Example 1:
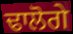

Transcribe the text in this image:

ਢਾਲੋਗੇ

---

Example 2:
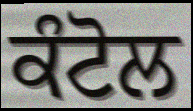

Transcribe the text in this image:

ਕੰਟੋਲ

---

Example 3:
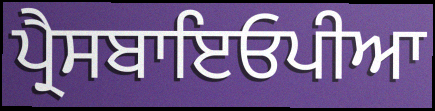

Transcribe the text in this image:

ਪ੍ਰੈਸਬਾਇਓਪੀਆ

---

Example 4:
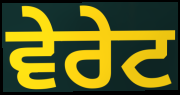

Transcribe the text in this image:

ਵੇਰੇਟ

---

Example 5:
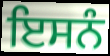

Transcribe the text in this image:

ਇਸਨੰ